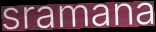
sramana